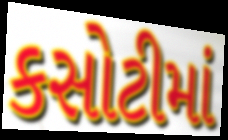
કસોટીમાં